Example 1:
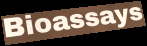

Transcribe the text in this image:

Bioassays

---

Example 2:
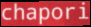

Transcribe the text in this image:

chapori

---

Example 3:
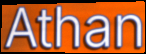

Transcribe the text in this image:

Athan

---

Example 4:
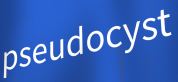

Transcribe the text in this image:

pseudocyst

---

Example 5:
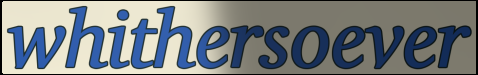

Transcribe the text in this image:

whithersoever